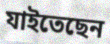
যাইতেছেন